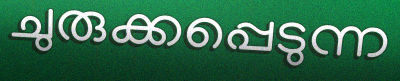
ചുരുക്കപ്പെടുന്ന